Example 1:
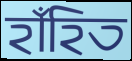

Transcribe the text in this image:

হাঁহিত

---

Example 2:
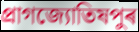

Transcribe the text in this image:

প্ৰাগজ্যোতিষপুৰ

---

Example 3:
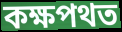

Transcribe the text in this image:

কক্ষপথত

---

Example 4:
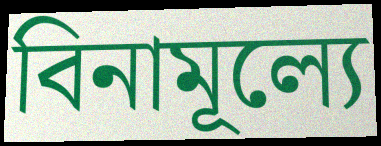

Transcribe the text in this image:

বিনামূল্যে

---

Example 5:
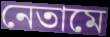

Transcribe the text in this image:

নেতামে